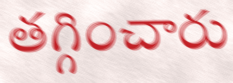
తగ్గించారు